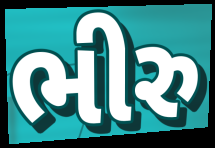
ભીરુ